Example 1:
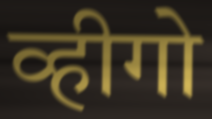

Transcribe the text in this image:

व्हीगो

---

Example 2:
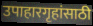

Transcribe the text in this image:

उपाहारगृहांसाठी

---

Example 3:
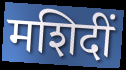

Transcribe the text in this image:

मशिदीं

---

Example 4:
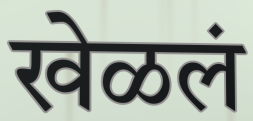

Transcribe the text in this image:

खेळलं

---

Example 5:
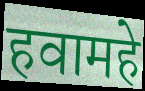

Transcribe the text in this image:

हवामहे